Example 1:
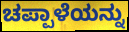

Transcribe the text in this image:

ಚಪ್ಪಾಳೆಯನ್ನು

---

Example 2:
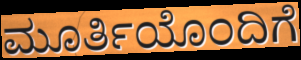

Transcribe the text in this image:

ಮೂರ್ತಿಯೊಂದಿಗೆ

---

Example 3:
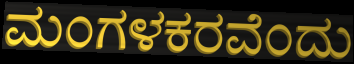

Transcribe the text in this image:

ಮಂಗಳಕರವೆಂದು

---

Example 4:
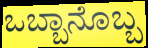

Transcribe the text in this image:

ಒಬ್ಬಾನೊಬ್ಬ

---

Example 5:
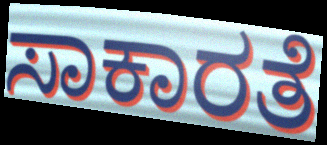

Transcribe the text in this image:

ಸಾಕಾರತೆ